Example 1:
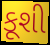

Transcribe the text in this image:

કૂશી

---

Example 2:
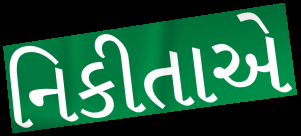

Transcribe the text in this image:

નિકીતાએ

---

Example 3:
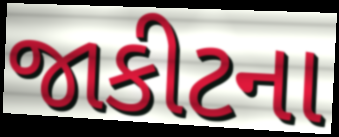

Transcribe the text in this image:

જાકીટના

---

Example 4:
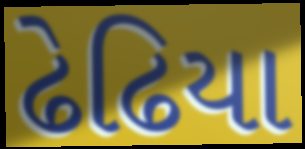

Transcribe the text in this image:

ઢેઢિયા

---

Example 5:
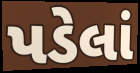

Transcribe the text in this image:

પડેલાં